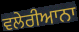
ਵਲੇਰੀਆਨਾ